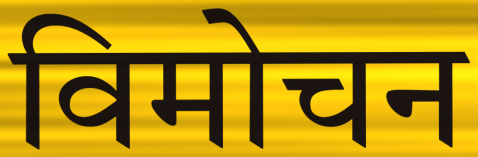
विमोचन